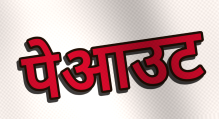
पेआउट